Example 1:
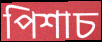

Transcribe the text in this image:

পিশাচ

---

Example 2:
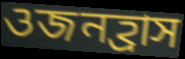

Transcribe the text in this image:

ওজনহ্রাস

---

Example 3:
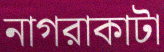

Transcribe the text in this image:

নাগরাকাটা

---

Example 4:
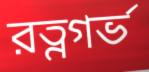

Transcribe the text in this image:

রত্নগর্ভ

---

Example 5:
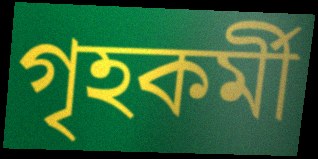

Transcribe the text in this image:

গৃহকর্মী